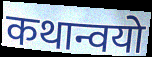
कथान्वयो